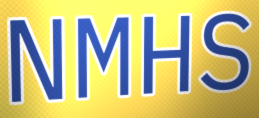
NMHS